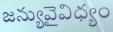
జన్యువైవిధ్యం